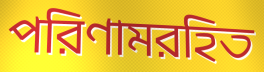
পরিণামরহিত